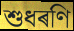
শুধৰণি